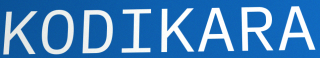
KODIKARA